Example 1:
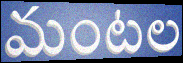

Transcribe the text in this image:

మంటల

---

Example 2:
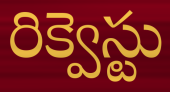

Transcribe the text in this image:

రిక్వెస్టు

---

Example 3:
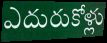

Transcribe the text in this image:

ఎదురుకోళ్లు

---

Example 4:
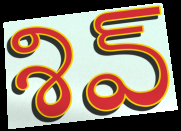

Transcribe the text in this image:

శివ్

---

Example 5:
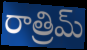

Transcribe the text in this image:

రాత్రిమ్